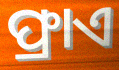
ଫ୍ରାଏ